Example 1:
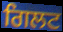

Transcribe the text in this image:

ਗਿਲਟ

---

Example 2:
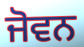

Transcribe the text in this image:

ਜੋਵਨ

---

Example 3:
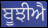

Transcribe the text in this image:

ਬੂਝੀਐ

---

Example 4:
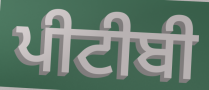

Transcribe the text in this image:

ਪੀਟੀਬੀ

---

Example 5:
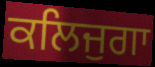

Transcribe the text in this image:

ਕਲਿਜੁਗਾ